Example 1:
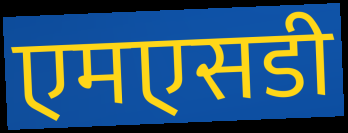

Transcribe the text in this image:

एमएसडी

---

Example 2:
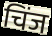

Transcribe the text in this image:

चिंज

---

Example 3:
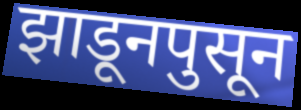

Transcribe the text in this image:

झाडूनपुसून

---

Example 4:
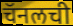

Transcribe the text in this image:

चॅनलची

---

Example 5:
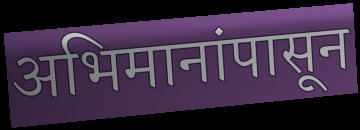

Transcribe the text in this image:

अभिमानांपासून